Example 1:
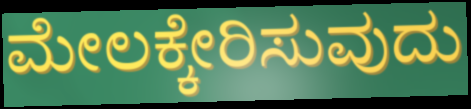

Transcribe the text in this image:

ಮೇಲಕ್ಕೇರಿಸುವುದು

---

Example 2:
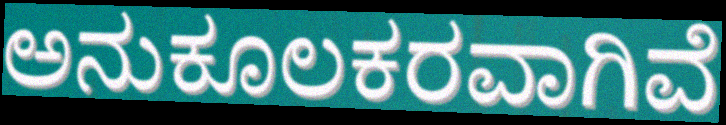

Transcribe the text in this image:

ಅನುಕೂಲಕರವಾಗಿವೆ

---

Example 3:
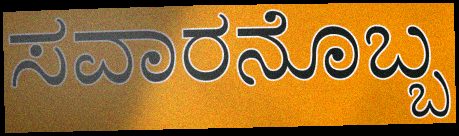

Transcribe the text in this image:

ಸವಾರನೊಬ್ಬ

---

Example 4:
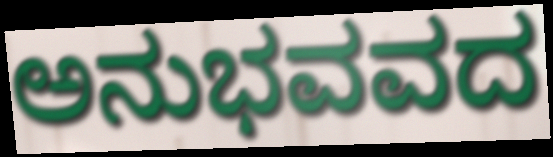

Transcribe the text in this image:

ಅನುಭವವದ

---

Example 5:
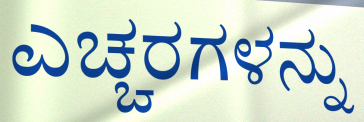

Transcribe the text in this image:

ಎಚ್ಚರಗಳನ್ನು